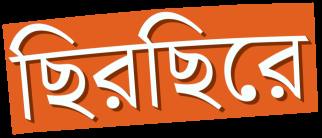
ছিরছিরে